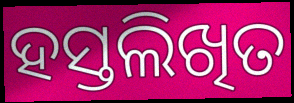
ହସ୍ତଲିଖିତ